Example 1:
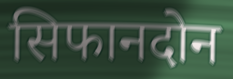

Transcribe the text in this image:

सिफानदोन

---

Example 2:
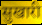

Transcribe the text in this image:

सुखारी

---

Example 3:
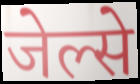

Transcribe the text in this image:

जेल्से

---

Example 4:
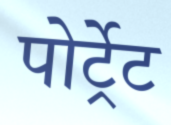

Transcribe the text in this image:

पोर्ट्रेट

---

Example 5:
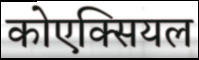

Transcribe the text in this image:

कोएक्सियल